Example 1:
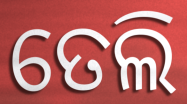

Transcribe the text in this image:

ତେଲି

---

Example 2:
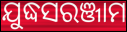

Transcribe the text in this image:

ଯୁଦ୍ଧସରଞ୍ଜାମ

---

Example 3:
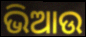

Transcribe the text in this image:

ଭିଆଉ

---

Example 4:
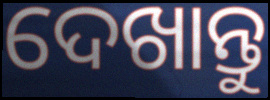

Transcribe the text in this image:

ଦେଖାନ୍ତୁ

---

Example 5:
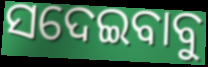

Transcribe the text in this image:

ସଦେଇବାବୁ